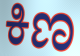
ಕಿಣ